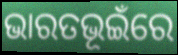
ଭାରତଭୂଇଁରେ